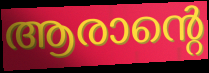
ആരാന്റെ